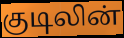
குடிலின்